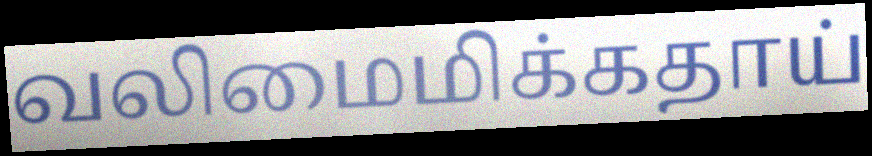
வலிமைமிக்கதாய்